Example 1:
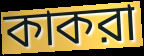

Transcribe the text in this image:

কাকরা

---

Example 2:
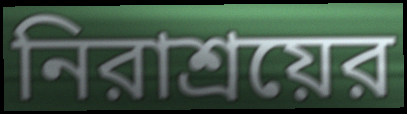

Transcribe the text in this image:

নিরাশ্রয়ের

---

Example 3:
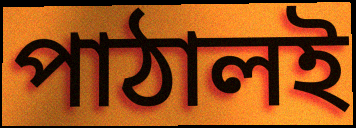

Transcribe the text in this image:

পাঠালই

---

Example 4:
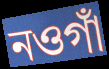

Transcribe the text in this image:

নওগাঁ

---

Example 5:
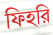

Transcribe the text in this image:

ফিহরি